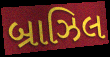
બ્રાઝિલ